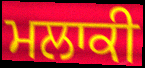
ਮਲਾਕੀ